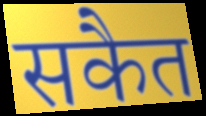
सकैत